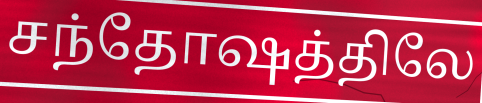
சந்தோஷத்திலே